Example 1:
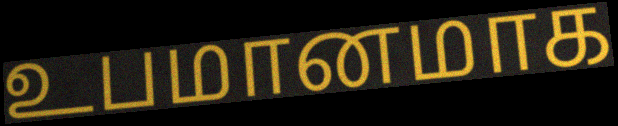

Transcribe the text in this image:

உபமானமாக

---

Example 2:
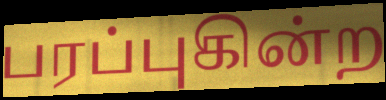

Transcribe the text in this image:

பரப்புகின்ற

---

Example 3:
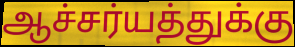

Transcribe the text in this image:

ஆச்சர்யத்துக்கு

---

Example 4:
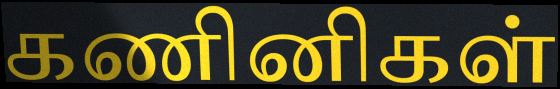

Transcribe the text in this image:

கணினிகள்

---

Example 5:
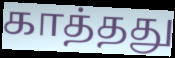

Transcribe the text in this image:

காத்தது